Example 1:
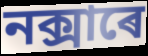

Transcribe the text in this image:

নক্সাৰে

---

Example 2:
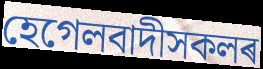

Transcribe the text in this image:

হেগেলবাদীসকলৰ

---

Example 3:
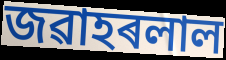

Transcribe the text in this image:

জৱাহৰলাল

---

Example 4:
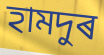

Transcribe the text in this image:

হামদুৰ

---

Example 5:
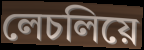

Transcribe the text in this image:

লেচলিয়ে